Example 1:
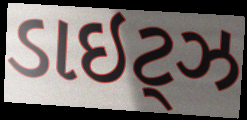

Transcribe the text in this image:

ડાઇટ્ઝ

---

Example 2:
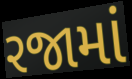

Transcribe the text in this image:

રજામાં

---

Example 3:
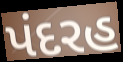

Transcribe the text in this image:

પંદરહ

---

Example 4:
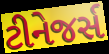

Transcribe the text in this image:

ટીનેજર્સ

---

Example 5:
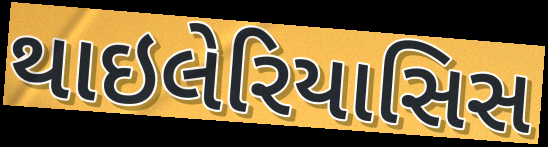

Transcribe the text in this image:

થાઇલેરિયાસિસ